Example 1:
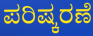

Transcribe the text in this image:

ಪರಿಷ್ಕರಣೆ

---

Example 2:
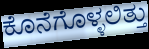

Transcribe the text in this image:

ಕೊನೆಗೊಳ್ಳಲಿತ್ತು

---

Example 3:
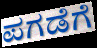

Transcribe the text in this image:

ಪಗಡೆಗೆ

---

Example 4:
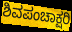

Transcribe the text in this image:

ಶಿವಪಂಚಾಕ್ಷರಿ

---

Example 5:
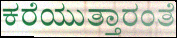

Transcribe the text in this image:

ಕರೆಯುತ್ತಾರಂತೆ